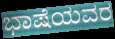
ಭಾಷೆಯವರ